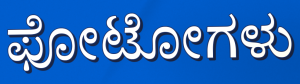
ಫೋಟೋಗಳು